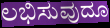
ಲಭಿಸುವುದೂ